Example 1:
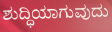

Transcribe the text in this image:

ಶುದ್ಧಿಯಾಗುವುದು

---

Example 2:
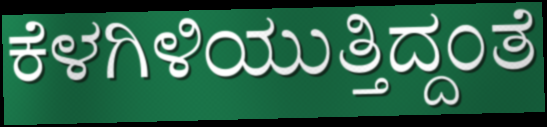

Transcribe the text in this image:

ಕೆಳಗಿಳಿಯುತ್ತಿದ್ದಂತೆ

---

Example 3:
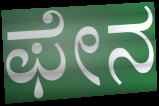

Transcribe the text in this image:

ಫೇನ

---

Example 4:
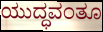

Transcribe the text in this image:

ಯುದ್ಧವಂತೂ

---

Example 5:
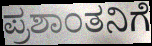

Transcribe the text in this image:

ಪ್ರಶಾಂತನಿಗೆ